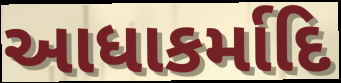
આધાકર્માદિ